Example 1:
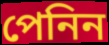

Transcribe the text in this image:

পেনিন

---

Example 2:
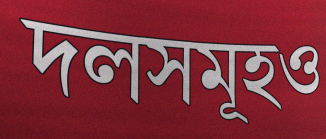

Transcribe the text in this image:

দলসমূহও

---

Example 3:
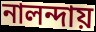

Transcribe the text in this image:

নালন্দায়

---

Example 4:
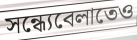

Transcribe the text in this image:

সন্ধ্যেবেলাতেও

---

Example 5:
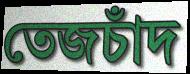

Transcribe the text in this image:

তেজচাঁদ